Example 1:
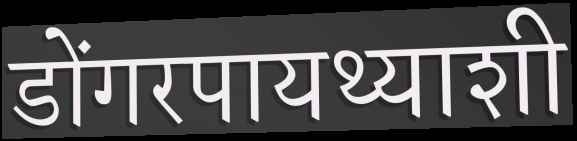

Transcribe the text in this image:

डोंगरपायथ्याशी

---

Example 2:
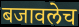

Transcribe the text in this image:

बजावलेच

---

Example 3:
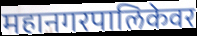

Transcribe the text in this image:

महानगरपालिकेवर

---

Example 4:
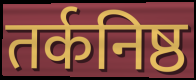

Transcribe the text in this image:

तर्कनिष्ठ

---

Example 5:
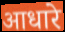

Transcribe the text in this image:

आधारे